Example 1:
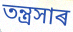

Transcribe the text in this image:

তন্ত্ৰসাৰ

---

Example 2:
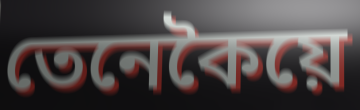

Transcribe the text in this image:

তেনেকৈয়ে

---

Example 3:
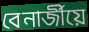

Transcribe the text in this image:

বেনাৰ্জীয়ে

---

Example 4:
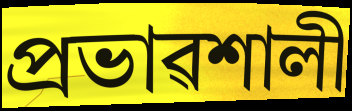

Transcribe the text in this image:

প্ৰভাৱশালী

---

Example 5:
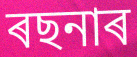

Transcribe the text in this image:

ৰছনাৰ